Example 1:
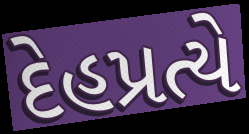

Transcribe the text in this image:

દેહપ્રત્યે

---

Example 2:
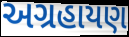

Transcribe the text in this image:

અગ્રહાયણ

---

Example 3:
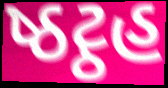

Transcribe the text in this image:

ષ્ઠટ્ઠહ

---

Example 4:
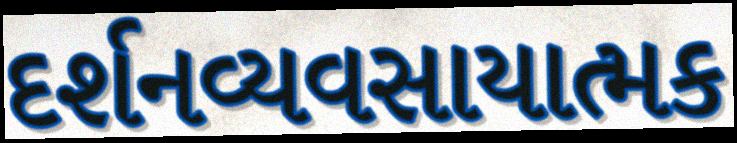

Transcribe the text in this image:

દર્શનવ્યવસાયાત્મક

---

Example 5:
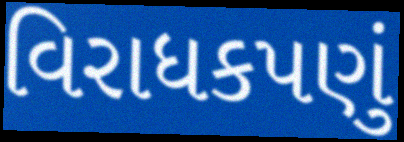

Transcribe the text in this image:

વિરાધકપણું